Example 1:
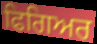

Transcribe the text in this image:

ਫਿਗਿਅਰ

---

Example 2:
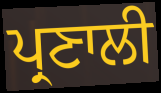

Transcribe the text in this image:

ਪ੍ਰਣਾਲੀ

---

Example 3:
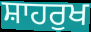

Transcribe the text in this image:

ਸ਼ਾਹਰੁਖ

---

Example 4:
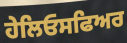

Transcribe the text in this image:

ਹੇਲਿਓਸਫਿਅਰ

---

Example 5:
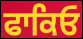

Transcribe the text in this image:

ਫਾਕਿਓ